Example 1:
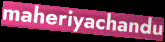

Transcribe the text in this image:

maheriyachandu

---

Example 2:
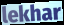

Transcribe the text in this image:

lekhar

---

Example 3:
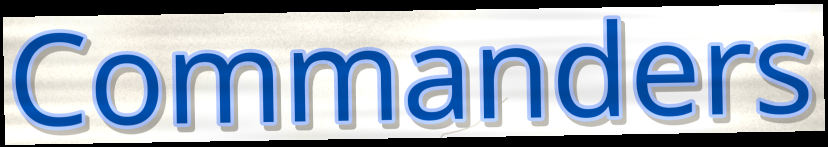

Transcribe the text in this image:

Commanders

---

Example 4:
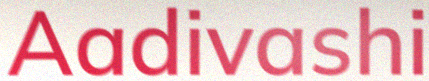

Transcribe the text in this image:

Aadivashi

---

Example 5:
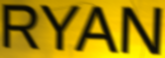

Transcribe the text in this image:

RYAN